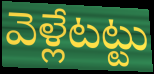
వెళ్లేటట్టు